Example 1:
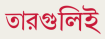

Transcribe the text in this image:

তারগুলিই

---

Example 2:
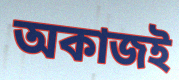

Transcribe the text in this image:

অকাজই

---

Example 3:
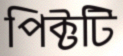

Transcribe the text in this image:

পিক্টটি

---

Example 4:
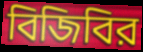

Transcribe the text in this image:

বিজিবির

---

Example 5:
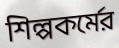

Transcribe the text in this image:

শিল্পকর্মের